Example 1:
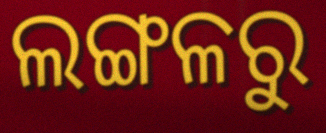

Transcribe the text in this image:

ଲଙ୍ଗଳରୁ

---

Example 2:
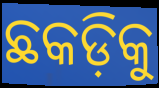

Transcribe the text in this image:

ଛକଡ଼ିକୁ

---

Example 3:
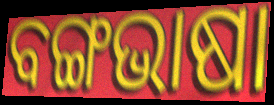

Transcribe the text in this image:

ବଙ୍ଗଭାଷା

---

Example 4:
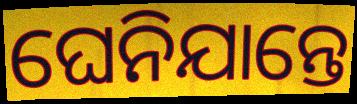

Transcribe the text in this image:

ଘେନିଯାନ୍ତେ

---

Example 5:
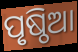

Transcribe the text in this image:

ପୃଷ୍ଠିଆ